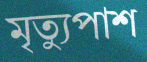
মৃত্যুপাশ